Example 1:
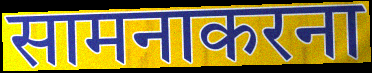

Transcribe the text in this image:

सामनाकरना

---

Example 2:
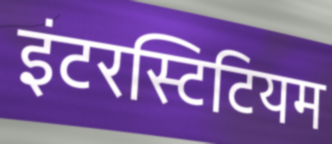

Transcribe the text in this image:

इंटरस्टिटियम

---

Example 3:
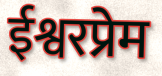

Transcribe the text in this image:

ईश्वरप्रेम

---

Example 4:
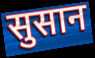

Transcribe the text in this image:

सुसान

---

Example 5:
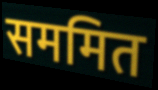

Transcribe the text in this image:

सममित